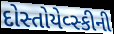
દોસ્તોયેવ્સ્કીની